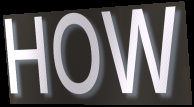
HOW